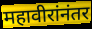
महावीरांनंतर